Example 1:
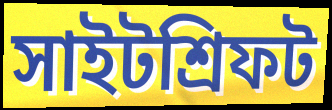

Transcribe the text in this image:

সাইটশ্রিফট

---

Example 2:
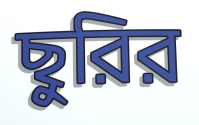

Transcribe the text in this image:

ছুরির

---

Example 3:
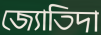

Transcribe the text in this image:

জ্যোতিদা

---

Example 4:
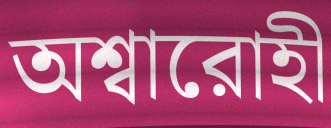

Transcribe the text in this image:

অশ্বারোহী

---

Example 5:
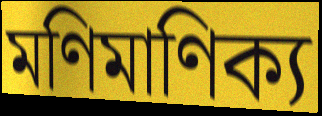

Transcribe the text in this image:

মণিমাণিক্য